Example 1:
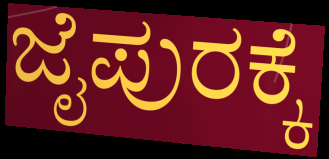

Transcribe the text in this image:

ಜೈಪುರಕ್ಕೆ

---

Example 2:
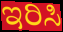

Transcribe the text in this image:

ಇರಿಸಿ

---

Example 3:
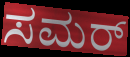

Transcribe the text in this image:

ಸಮರ್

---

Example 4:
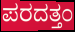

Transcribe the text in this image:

ಪರದತ್ತಂ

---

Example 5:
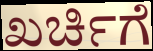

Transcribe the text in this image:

ಖರ್ಚಿಗೆ